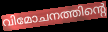
വിമോചനത്തിന്റെ